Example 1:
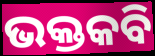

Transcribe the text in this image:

ଭକ୍ତକବି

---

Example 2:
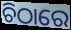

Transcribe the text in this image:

ଚିଠାରେ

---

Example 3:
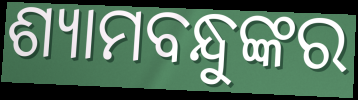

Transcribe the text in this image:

ଶ୍ୟାମବନ୍ଧୁଙ୍କର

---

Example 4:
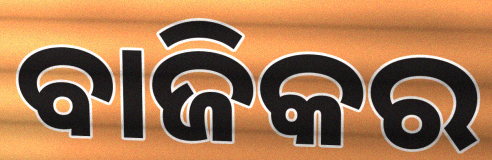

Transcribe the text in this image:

ବାଜିକର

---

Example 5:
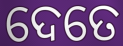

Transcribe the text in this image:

ଦେତେ